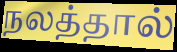
நலத்தால்